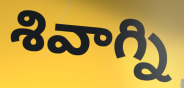
శివాగ్ని